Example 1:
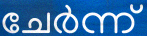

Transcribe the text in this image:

ചേർന്ന്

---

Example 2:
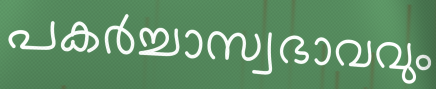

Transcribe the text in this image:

പകർച്ചാസ്വഭാവവും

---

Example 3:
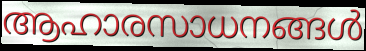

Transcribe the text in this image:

ആഹാരസാധനങ്ങൾ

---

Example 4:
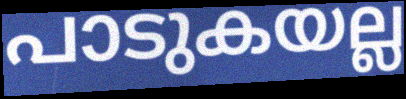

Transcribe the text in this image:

പാടുകയല്ല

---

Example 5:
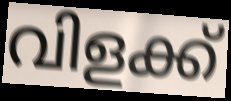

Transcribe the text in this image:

വിളക്ക്